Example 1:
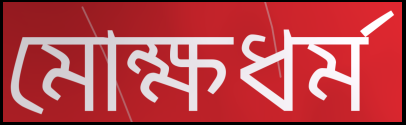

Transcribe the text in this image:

মোক্ষধর্ম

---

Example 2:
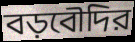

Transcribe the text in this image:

বড়বৌদির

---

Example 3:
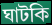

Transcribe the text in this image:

ঘাটকি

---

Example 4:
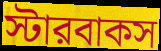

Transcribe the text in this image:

স্টারবাকস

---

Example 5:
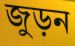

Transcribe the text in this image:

জুড়ন